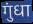
गुंधा